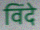
विंदे